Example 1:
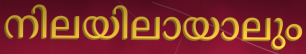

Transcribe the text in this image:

നിലയിലായാലും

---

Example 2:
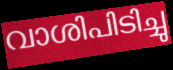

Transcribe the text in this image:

വാശിപിടിച്ചു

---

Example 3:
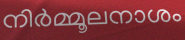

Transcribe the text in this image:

നിർമ്മൂലനാശം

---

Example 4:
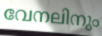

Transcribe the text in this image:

വേനലിനും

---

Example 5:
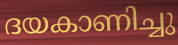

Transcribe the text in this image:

ദയകാണിച്ചു